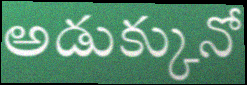
అడుక్కునో